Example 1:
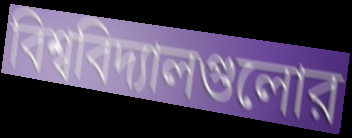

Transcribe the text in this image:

বিশ্ববিদ্যালগুলোর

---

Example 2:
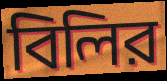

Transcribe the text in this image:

বিলির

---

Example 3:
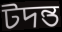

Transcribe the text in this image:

টদন্ত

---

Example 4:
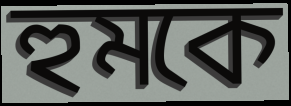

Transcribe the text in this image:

হুমকে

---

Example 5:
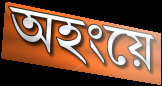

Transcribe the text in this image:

অহংয়ে